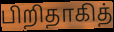
பிறிதாகித்